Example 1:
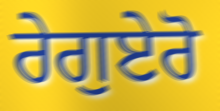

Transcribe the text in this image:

ਰੇਗੁਏਰੋ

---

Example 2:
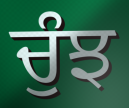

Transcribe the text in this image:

ਚੁੰਝ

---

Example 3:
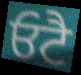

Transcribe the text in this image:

ਓਟੈ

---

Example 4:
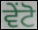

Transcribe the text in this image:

ਵੇਂਟੋ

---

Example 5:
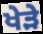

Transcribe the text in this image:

ਖੇੜੇ